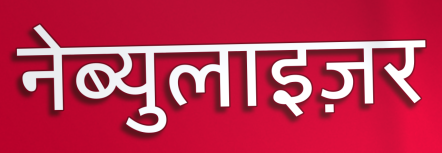
नेब्युलाइज़र